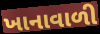
ખાનાવાળી